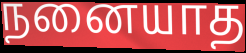
நனையாத